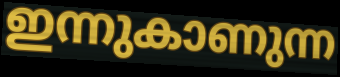
ഇന്നുകാണുന്ന